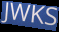
JWKS